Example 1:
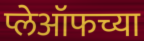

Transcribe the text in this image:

प्लेऑफच्या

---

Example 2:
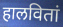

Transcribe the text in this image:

हालवितां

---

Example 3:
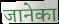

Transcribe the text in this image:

जानेका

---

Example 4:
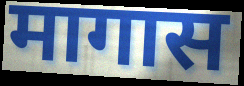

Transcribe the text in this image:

मागास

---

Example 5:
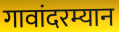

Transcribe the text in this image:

गावांदरम्यान